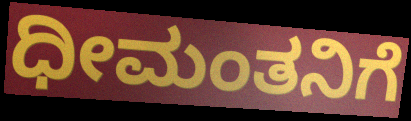
ಧೀಮಂತನಿಗೆ